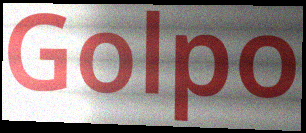
Golpo